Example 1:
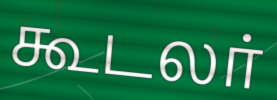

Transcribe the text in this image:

கூடலர்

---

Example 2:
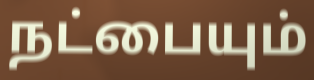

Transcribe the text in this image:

நட்பையும்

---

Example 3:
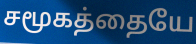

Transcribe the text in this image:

சமூகத்தையே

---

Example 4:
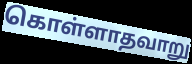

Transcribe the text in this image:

கொள்ளாதவாறு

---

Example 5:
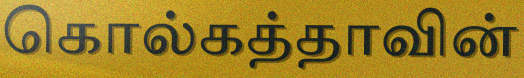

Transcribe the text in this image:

கொல்கத்தாவின்